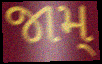
જામ્